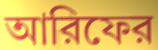
আরিফের